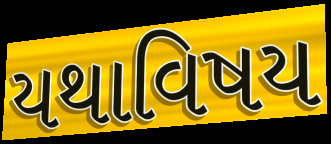
યથાવિષય